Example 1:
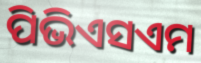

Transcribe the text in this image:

ପିଭିଏସଏମ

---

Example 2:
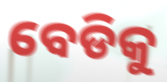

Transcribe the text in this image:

ବେଡିକୁ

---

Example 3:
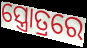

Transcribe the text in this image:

ସ୍ତ୍ରୋତ୍ରରେ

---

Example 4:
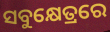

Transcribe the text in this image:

ସବୁକ୍ଷେତ୍ରରେ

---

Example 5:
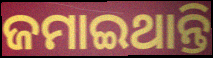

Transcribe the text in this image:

ଜମାଇଥାନ୍ତି